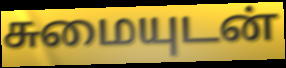
சுமையுடன்